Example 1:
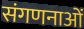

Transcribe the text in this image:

संगणनाओं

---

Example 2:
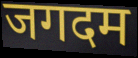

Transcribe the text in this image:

जगदम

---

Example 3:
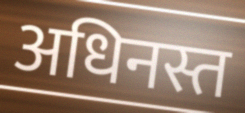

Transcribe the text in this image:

अधिनस्त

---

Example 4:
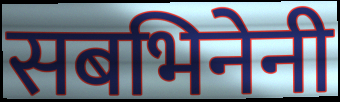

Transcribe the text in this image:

सबभिनेनी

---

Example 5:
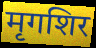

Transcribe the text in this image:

मृगशिर